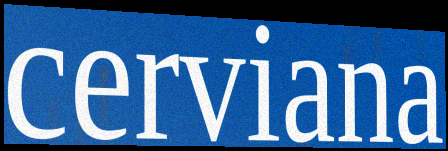
cerviana